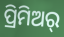
ପ୍ରିମିଅର୍